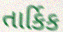
તાર્કિક